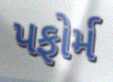
પફોર્મ